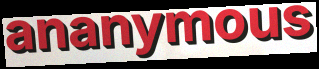
ananymous